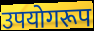
उपयोगरूप